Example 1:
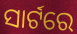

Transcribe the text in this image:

ସାର୍ଟରେ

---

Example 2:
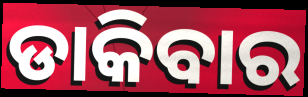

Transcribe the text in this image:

ଡାକିବାର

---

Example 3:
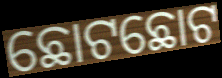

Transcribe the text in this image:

ଛୋଟଛୋଟ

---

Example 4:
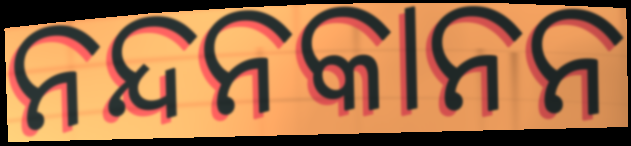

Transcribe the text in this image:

ନନ୍ଦନକାନନ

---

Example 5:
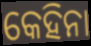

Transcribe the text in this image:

କେହିନା